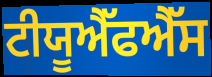
ਟੀਯੂਐੱਫਐੱਸ